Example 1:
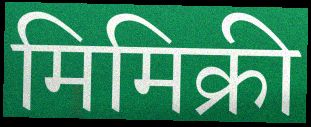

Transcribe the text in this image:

मिमिक्री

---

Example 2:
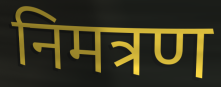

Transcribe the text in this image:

निमत्रण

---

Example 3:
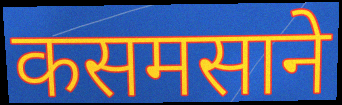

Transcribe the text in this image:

कसमसाने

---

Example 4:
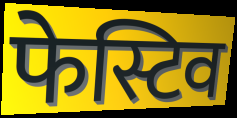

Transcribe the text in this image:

फेस्टिव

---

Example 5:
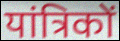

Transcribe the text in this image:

यांत्रिकों